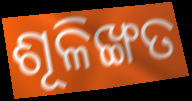
ଶୂଳିଙ୍ଖତ